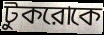
টুকরোকে